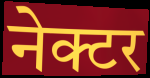
नेक्टर